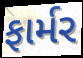
ફાર્મર